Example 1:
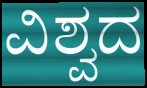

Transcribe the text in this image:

ವಿಶ್ವದ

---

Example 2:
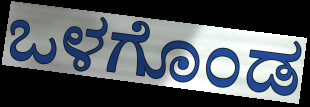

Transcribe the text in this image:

ಒಳಗೊಂಡ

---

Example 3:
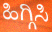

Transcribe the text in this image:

ಹಿಗ್ಗಿಸಿ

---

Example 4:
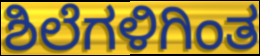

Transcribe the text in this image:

ಶಿಲೆಗಳಿಗಿಂತ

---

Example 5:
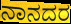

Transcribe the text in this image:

ನಾನದರ